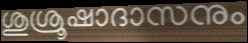
ശുശ്രൂഷാദാസനും